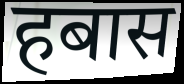
हबास